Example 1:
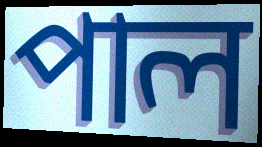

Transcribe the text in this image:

পাল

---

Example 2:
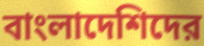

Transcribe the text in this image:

বাংলাদেশিদের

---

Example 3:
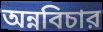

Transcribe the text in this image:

অন্নবিচার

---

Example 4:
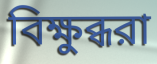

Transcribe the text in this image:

বিক্ষুব্ধরা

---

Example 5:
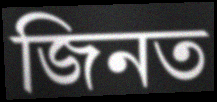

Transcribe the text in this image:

জিনত